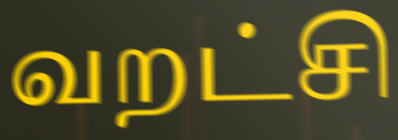
வறட்சி